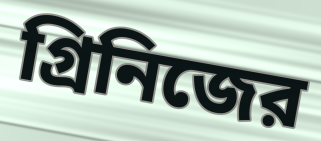
গ্রিনিজের